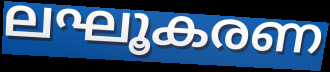
ലഘൂകരണ